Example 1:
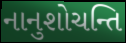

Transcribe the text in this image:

નાનુશોચન્તિ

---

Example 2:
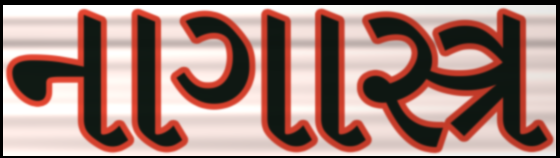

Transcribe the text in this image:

નાગાસ્ત્ર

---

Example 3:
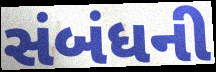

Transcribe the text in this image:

સંબંધની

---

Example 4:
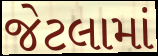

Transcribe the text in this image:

જેટલામાં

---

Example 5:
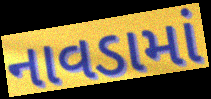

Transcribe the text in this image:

નાવડામાં